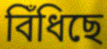
বিঁধিছে